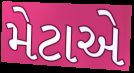
મેટાએ